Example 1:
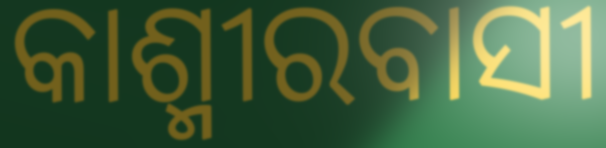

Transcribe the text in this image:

କାଶ୍ମୀରବାସୀ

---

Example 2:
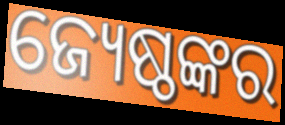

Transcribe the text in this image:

ଜ୍ୟେଷ୍ଠଙ୍କର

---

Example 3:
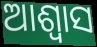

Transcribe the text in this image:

ଆଶ୍ୱାସ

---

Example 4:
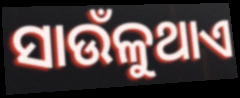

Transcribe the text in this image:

ସାଉଁଳୁଥାଏ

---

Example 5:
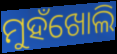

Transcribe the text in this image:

ମୁହଁଖୋଲି